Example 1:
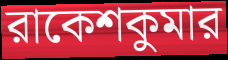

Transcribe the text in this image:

রাকেশকুমার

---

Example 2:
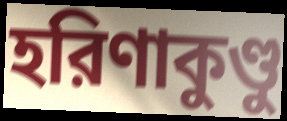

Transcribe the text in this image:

হরিণাকুণ্ডু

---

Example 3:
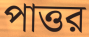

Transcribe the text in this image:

পাত্তর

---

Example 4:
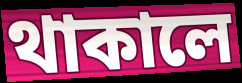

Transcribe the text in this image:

থাকালে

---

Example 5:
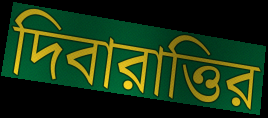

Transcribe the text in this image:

দিবারাত্তির